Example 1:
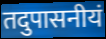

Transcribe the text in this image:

तदुपासनीयं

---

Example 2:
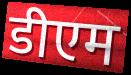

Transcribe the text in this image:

डीएम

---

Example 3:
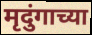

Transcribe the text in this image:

मृदुंगाच्या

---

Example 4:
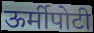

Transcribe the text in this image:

ऊर्मीपोटी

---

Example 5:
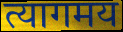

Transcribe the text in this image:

त्यागमय